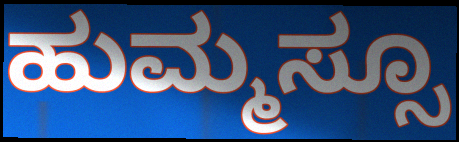
ಹುಮ್ಮಸ್ಸೂ